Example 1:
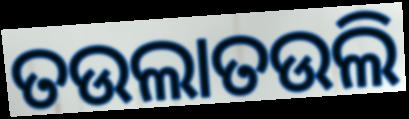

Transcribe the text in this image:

ତଉଲାତଉଲି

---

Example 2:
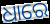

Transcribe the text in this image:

ଧାରେ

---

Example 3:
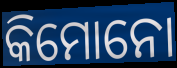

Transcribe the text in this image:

କିମୋନୋ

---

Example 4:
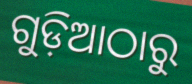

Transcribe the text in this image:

ଗୁଡ଼ିଆଠାରୁ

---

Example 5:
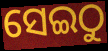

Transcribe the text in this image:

ସେଇଠୁ